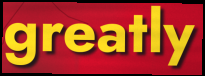
greatly